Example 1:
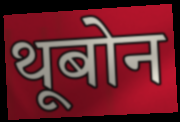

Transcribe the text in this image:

थूबोन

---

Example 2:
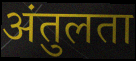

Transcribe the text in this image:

अंतुलता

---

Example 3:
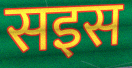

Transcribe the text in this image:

सइस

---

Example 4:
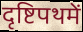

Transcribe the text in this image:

दृष्टिपथमें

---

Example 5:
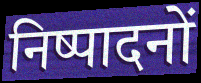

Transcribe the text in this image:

निष्पादनों